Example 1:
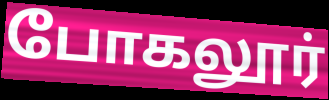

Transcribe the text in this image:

போகலூர்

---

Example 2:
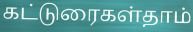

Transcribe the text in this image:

கட்டுரைகள்தாம்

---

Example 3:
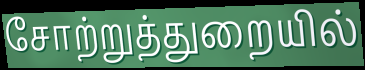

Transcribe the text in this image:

சோற்றுத்துறையில்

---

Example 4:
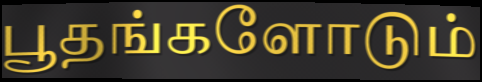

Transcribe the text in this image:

பூதங்களோடும்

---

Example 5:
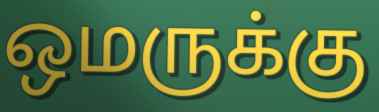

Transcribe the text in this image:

ஒமருக்கு